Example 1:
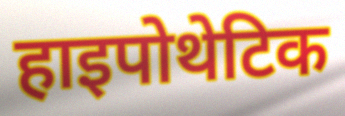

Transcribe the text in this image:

हाइपोथेटिक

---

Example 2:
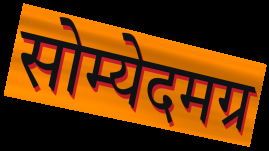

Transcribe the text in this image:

सोम्येदमग्र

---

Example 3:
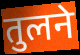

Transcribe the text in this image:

तुलने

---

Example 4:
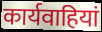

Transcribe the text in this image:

कार्यवाहियां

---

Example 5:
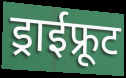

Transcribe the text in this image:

ड्राईफ्रूट